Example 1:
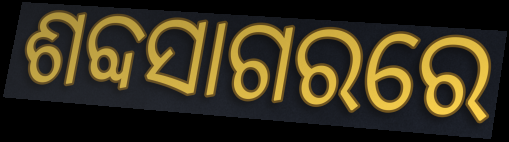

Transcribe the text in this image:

ଶବ୍ଦସାଗରରେ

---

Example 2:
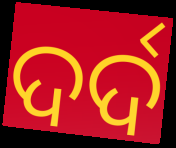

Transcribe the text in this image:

ଦର୍ଦ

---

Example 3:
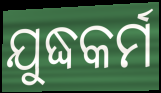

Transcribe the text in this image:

ଯୁଦ୍ଧକର୍ମ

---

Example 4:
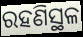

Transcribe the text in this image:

ରହଣିସ୍ଥଳ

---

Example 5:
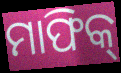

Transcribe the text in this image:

ମାଫିକ୍